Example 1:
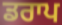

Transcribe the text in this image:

ਡਰਾਪ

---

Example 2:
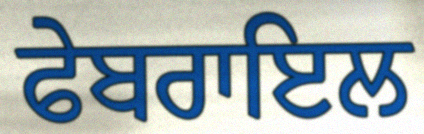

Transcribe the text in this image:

ਫੇਬਰਾਇਲ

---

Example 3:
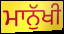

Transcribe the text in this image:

ਮਾਨੁੱਖੀ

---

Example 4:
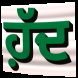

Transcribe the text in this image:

ਹ਼ੱਦ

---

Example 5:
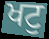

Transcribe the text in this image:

ਖਟੁ